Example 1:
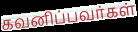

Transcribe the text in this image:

கவனிப்பவர்கள்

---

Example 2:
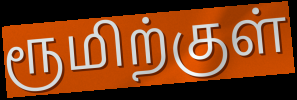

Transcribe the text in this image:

ரூமிற்குள்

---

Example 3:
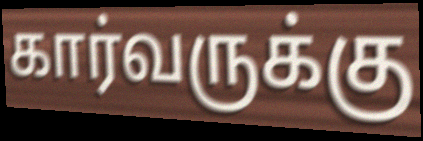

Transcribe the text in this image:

கார்வருக்கு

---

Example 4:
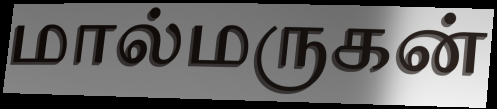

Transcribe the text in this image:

மால்மருகன்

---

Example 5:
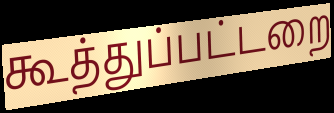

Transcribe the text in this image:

கூத்துப்பட்டறை